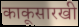
काकूसारखी